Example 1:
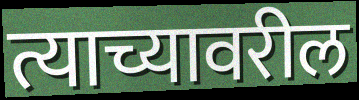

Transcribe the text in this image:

त्याच्यावरील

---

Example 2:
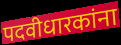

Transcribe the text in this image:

पदवीधारकांना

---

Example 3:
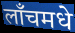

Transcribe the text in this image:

लाँचमधे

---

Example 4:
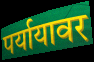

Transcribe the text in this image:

पर्यायावर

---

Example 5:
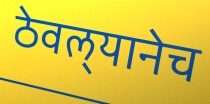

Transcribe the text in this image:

ठेवल्यानेच